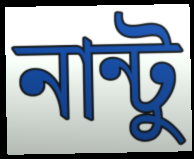
নান্টু